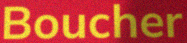
Boucher